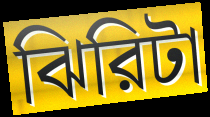
ঝিরিটা